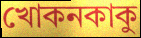
খোকনকাকু